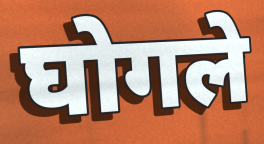
घोगले